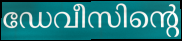
ഡേവീസിന്റെ